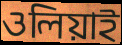
ওলিয়াই